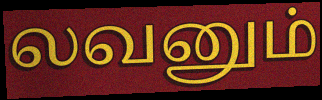
லவனும்